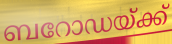
ബറോഡയ്ക്ക്